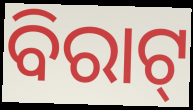
ବିରାଟ୍